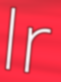
Ir